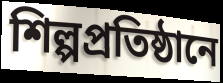
শিল্পপ্রতিষ্ঠানে